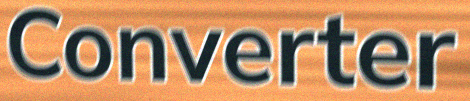
Converter